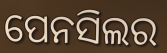
ପେନସିଲର